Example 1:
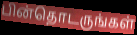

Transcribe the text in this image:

பின்தொடருங்கள்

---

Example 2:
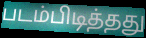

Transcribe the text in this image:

படம்பிடித்தது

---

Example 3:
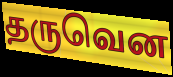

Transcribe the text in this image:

தருவென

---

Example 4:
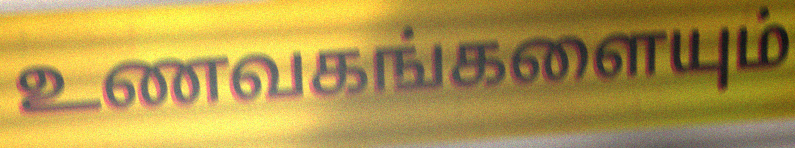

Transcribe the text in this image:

உணவகங்களையும்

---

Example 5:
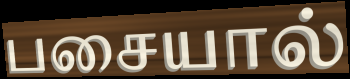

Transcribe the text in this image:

பசையால்